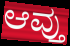
ಆವ್ತು